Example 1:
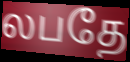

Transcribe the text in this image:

லபதே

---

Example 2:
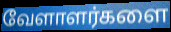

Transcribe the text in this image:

வேளாளர்களை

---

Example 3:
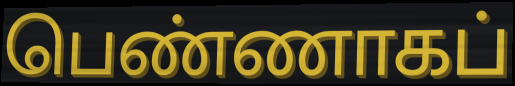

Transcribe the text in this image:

பெண்ணாகப்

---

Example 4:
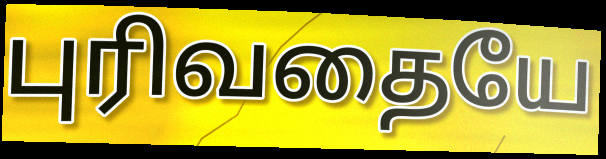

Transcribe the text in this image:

புரிவதையே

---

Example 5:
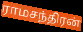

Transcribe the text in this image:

ராமசந்திரன்